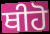
ਥੀਹੋ